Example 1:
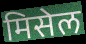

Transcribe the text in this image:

मिसेल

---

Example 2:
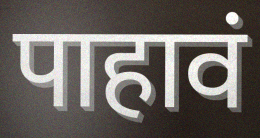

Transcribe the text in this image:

पाहावं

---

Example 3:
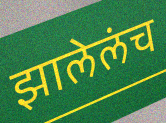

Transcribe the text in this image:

झालेलंच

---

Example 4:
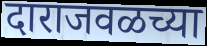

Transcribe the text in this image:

दाराजवळच्या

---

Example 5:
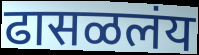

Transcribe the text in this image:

ढासळलंय